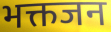
भक्तजन